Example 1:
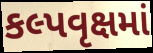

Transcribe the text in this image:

કલ્પવૃક્ષમાં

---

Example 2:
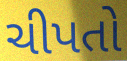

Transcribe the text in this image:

ચીપતો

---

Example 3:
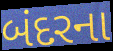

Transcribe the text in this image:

બંદરના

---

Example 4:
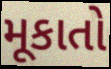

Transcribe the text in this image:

મૂકાતો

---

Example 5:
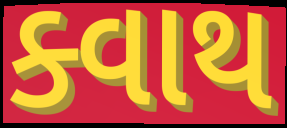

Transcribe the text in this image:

ક્વાથ